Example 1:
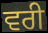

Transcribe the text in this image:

ਵਰੀ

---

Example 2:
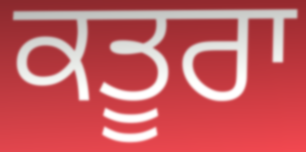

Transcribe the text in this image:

ਕਤੂਰਾ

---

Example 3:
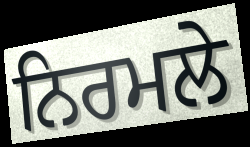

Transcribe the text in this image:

ਨਿਰਮਲੇ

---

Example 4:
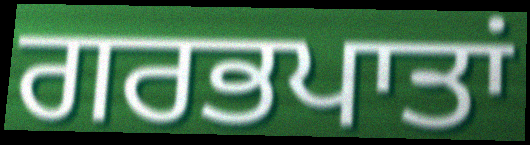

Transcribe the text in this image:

ਗਰਭਪਾਤਾਂ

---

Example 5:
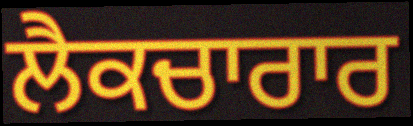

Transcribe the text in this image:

ਲੈਕਚਾਰਾਰ